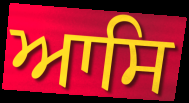
ਆਸਿ